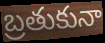
బ్రతుకునా